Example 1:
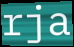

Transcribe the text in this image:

rja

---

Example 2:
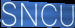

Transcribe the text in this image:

SNCU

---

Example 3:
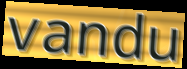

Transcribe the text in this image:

vandu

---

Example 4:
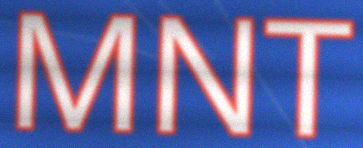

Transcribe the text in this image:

MNT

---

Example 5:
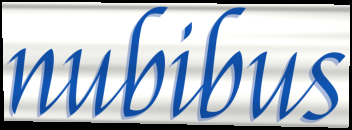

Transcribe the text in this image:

nubibus